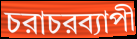
চরাচরব্যাপী